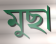
মুছা